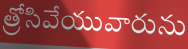
త్రోసివేయువారును